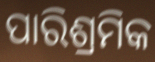
ପାରିଶ୍ରମିକ